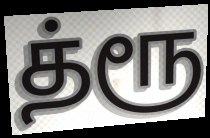
த்ரூ